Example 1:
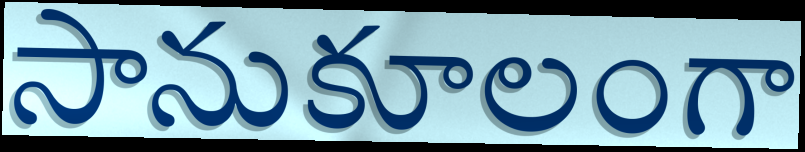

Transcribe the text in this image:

సానుకూలంగా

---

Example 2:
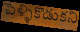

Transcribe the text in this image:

పెళ్ళికొడుకని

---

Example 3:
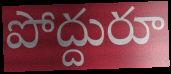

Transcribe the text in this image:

పోద్దురూ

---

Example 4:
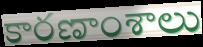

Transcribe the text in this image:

కారణాంశాలు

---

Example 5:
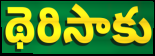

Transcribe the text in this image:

థెరిసాకు